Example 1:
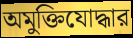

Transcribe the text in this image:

অমুক্তিযোদ্ধার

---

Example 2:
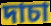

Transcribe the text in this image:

দাচা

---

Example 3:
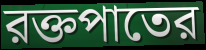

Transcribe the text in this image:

রক্তপাতের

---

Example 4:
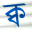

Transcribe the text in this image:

ক্ব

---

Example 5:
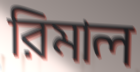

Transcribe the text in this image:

রিমাল